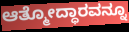
ಆತ್ಮೋದ್ಧಾರವನ್ನೂ